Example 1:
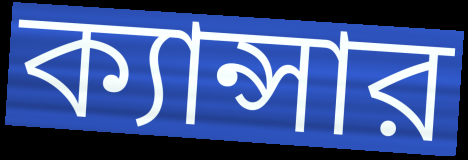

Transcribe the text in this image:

ক্যান্সার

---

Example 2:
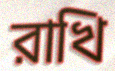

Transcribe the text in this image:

রাখি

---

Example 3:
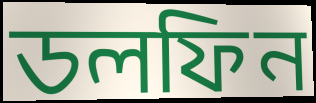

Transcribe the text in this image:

ডলফিন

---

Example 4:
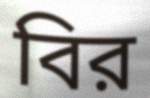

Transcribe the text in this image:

বির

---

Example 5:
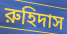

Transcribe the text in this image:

রুহিদাস